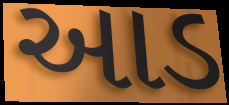
આડ